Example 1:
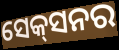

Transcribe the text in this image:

ସେକ୍‍ସନର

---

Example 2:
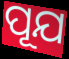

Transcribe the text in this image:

ପୂଯ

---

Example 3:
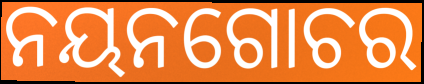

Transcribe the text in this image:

ନୟନଗୋଚର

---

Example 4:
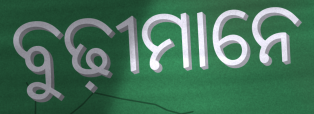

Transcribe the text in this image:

ବୁଢ଼ୀମାନେ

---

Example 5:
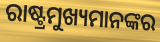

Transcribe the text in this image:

ରାଷ୍ଟ୍ରମୁଖ୍ୟମାନଙ୍କର